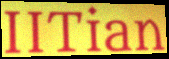
IITian